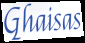
Ghaisas